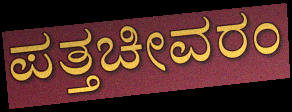
ಪತ್ತಚೀವರಂ